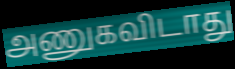
அணுகவிடாது